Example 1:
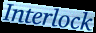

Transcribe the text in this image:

Interlock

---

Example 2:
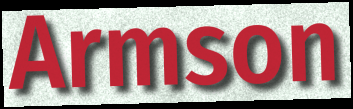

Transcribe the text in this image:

Armson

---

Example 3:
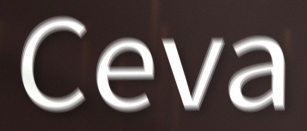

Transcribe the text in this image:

Ceva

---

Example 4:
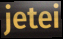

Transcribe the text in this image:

jetei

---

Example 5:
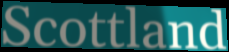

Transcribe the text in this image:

Scottland